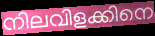
നിലവിളക്കിനെ